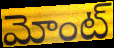
మోంట్